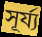
সূর্য্য